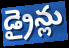
డ్రైన్లు